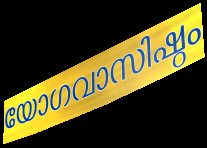
യോഗവാസിഷ്ഠം